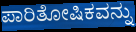
ಪಾರಿತೋಷಿಕವನ್ನು